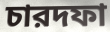
চারদফা